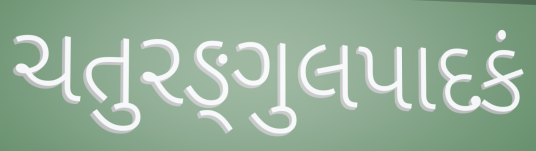
ચતુરઙ્ગુલપાદકં